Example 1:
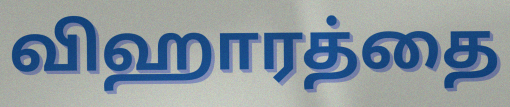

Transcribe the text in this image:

விஹாரத்தை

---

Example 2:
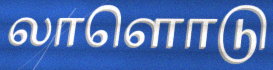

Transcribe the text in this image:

லாளொடு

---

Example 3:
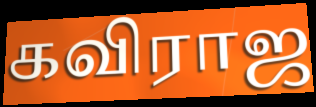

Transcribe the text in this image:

கவிராஜ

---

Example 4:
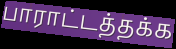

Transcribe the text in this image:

பாராட்டத்தக்க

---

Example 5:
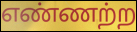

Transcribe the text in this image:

எண்ணற்ற